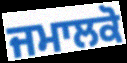
ਜਮਾਲਕੋ